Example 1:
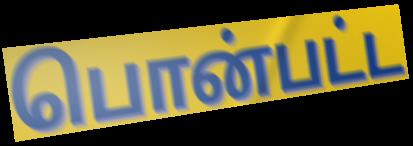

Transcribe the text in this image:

பொன்பட்ட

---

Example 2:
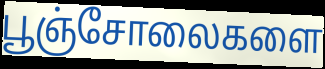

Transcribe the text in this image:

பூஞ்சோலைகளை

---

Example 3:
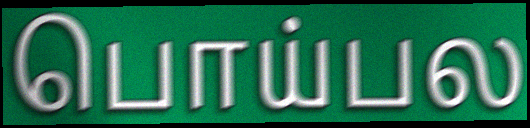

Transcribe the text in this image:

பொய்பல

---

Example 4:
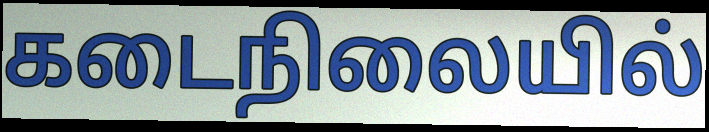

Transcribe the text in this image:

கடைநிலையில்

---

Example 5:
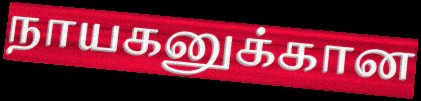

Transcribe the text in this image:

நாயகனுக்கான